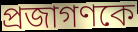
প্রজাগণকে